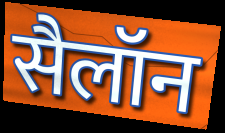
सैलॉन